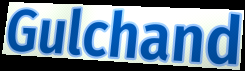
Gulchand